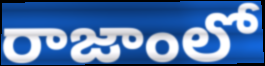
రాజాంలో